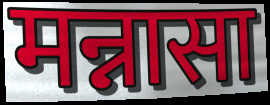
मन्नासा